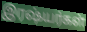
இரஷ்யர்கள்